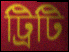
ট্রিটি